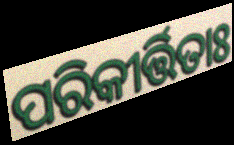
ପରିକୀର୍ତ୍ତିତାଃ